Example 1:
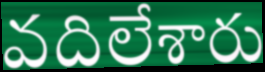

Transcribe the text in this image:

వదిలేశారు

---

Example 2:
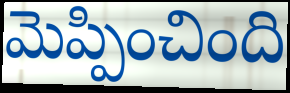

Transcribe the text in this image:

మెప్పించింది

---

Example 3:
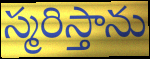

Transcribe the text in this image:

స్మరిస్తాను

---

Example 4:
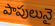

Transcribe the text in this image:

పాపులునై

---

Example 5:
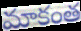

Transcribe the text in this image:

మాకంత